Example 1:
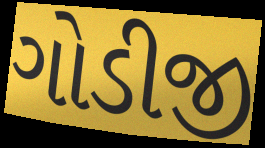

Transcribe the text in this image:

ગોડીજી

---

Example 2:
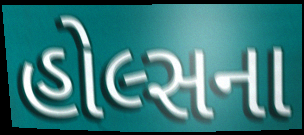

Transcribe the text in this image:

હોલ્સના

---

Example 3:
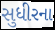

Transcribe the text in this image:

સુધીરના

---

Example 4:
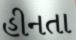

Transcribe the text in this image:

હીનતા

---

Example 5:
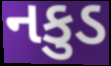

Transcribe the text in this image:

નકુડ